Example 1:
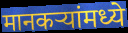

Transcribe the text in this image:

मानकऱ्यांमध्ये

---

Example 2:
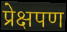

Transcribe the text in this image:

प्रेक्षपण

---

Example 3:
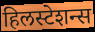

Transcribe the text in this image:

हिलस्टेशन्स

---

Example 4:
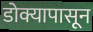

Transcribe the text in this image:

डोक्यापासून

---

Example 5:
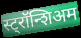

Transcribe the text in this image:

स्ट्रॉन्शिअम